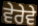
ਵੇਰੇਵੇ